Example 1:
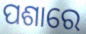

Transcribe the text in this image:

ପଶାରେ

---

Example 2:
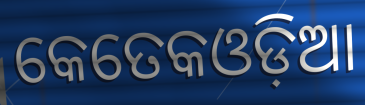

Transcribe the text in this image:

କେତେକଓଡ଼ିଆ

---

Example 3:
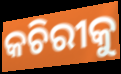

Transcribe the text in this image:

କଚିରୀକୁ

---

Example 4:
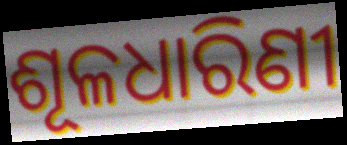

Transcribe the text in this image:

ଶୂଳଧାରିଣୀ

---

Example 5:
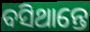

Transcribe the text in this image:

ବସିଥାନ୍ତେ